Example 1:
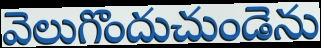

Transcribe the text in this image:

వెలుగొందుచుండెను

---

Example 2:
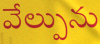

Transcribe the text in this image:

వేల్పును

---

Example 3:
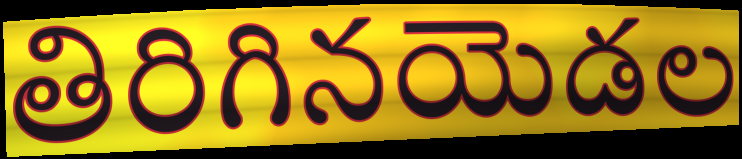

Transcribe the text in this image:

తిరిగినయెడల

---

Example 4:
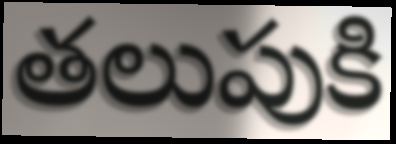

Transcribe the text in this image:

తలుపుకి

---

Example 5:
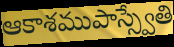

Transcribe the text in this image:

ఆకాశముపాస్స్వేతి